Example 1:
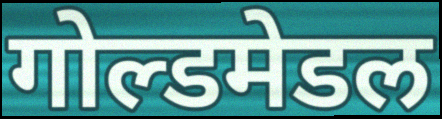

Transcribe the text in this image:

गोल्डमेडल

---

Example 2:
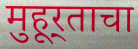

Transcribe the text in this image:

मुहूर्ताचा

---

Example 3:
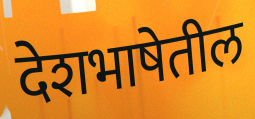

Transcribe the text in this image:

देशभाषेतील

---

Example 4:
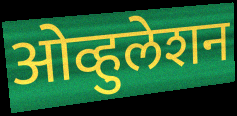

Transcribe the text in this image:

ओव्हुलेशन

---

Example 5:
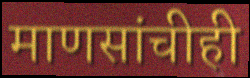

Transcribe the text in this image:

माणसांचीही